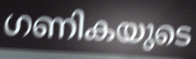
ഗണികയുടെ